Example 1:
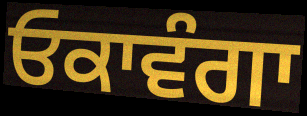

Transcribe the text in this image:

ਓਕਾਵੰਗਾ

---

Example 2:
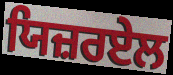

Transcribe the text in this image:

ਯਿਜ਼ਰਏਲ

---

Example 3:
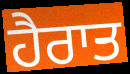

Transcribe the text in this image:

ਹੈਰਾਤ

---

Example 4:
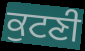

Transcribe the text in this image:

ਕੁਟਣੀ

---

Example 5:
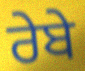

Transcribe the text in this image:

ਰੇਬੇ